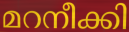
മറനീക്കി